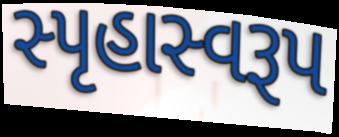
સ્પૃહાસ્વરૂપ